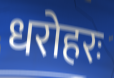
धरोहरः